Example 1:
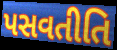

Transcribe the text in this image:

પસવતીતિ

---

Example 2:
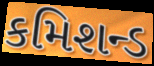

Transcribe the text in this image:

કમિશન્ડ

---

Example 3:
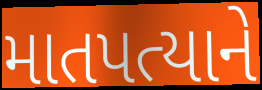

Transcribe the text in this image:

માતપત્યાને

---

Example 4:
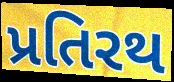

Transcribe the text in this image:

પ્રતિરથ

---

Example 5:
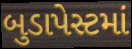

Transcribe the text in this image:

બુડાપેસ્ટમાં